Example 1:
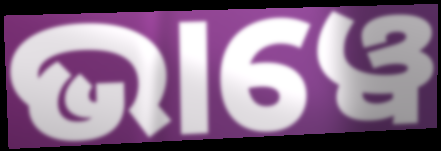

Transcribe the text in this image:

ଭାୱେ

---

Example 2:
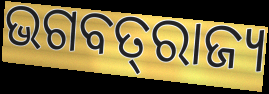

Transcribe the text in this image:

ଭଗବତ୍‌ରାଜ୍ୟ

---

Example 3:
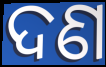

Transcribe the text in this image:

ଦଣ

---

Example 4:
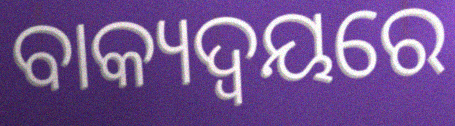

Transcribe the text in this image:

ବାକ୍ୟଦ୍ଵୟରେ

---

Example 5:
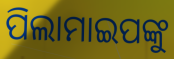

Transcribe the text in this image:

ପିଲାମାଇପଙ୍କୁ